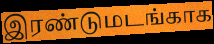
இரண்டுமடங்காக